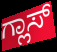
ಗ್ಲಾಸ್